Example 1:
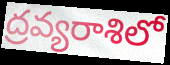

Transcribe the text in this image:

ద్రవ్యరాశిలో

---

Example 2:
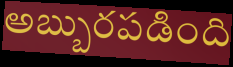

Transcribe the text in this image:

అబ్బురపడింది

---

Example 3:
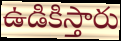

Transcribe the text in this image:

ఉడికిస్తారు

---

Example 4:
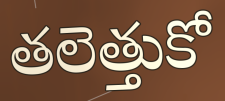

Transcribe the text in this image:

తలెత్తుకో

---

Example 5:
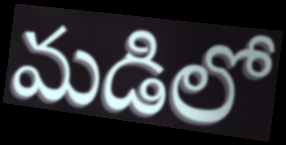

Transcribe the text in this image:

మడిలో